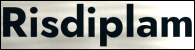
Risdiplam